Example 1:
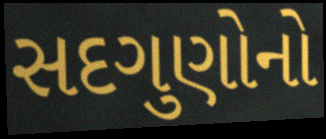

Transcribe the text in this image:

સદગુણોનો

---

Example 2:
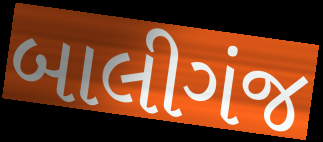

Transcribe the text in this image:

બાલીગંજ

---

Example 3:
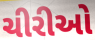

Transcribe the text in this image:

ચીરીઓ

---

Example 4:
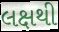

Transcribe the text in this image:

લક્ષથી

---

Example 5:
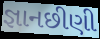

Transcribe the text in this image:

જ્ઞાનછીણી